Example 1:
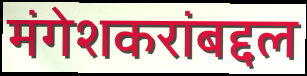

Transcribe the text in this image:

मंगेशकरांबद्दल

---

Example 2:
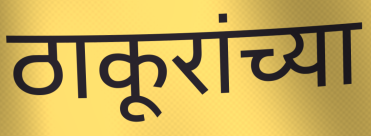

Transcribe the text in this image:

ठाकूरांच्या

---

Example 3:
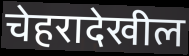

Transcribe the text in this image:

चेहरादेखील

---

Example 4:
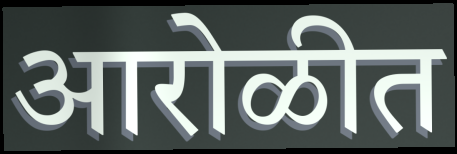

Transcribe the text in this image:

आरोळीत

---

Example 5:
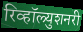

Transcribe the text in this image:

रिव्हॉल्युशनरी